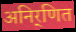
अनिर्णित